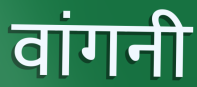
वांगनी